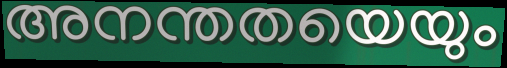
അനന്തതയെയും